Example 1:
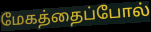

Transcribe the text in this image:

மேகத்தைப்போல்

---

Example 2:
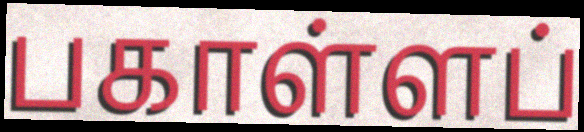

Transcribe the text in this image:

பகாள்ளப்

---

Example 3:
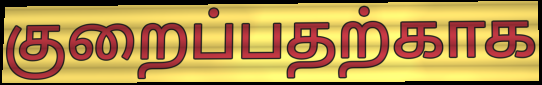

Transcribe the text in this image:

குறைப்பதற்காக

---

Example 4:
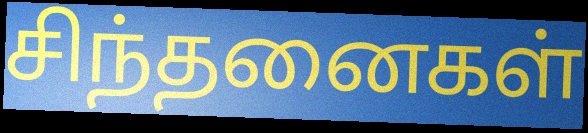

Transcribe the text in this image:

சிந்தனைகள்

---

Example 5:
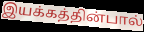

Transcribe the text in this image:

இயக்கத்தின்பால்